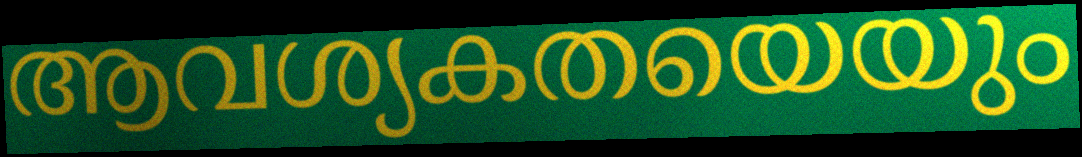
ആവശ്യകതയെയും